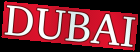
DUBAI